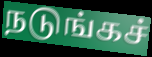
நடுங்கச்